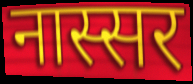
नास्सर